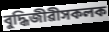
বুদ্ধিজীৱীসকলক